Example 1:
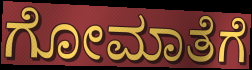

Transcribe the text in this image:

ಗೋಮಾತೆಗೆ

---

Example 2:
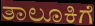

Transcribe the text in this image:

ತಾಲೂಕಿಗೆ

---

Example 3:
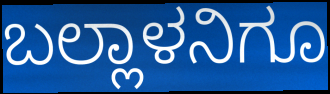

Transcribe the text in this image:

ಬಲ್ಲಾಳನಿಗೂ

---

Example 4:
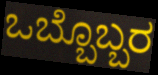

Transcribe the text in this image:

ಒಬ್ಬೊಬ್ಬರ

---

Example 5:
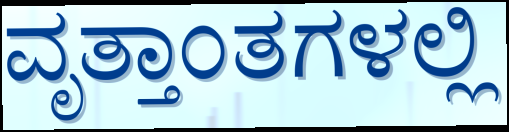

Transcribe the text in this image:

ವೃತ್ತಾಂತಗಳಲ್ಲಿ